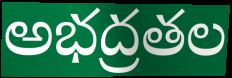
అభద్రతల